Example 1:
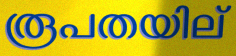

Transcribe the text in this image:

രൂപതയില്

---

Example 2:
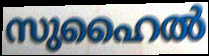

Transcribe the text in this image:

സുഹൈൽ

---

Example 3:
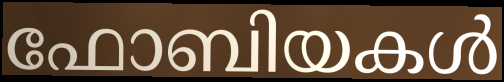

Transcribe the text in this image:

ഫോബിയകൾ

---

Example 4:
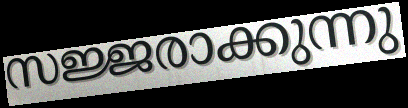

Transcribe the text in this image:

സജ്ജരാക്കുന്നു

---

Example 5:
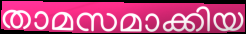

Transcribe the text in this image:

താമസമാക്കിയ